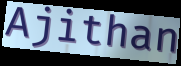
Ajithan